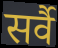
सर्वै